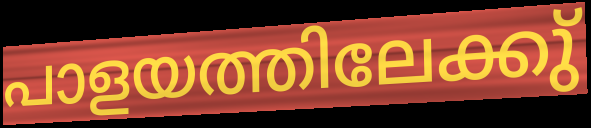
പാളയത്തിലേക്കു്